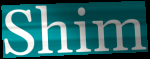
Shim